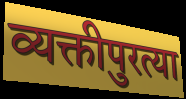
व्यक्तीपुरत्या